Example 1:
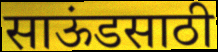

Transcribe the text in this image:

साऊंडसाठी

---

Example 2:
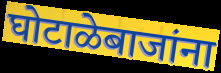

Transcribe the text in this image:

घोटाळेबाजांना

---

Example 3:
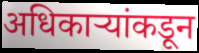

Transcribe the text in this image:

अधिकाऱ्यांकडून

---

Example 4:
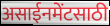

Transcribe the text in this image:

असाईनमेंटसाठी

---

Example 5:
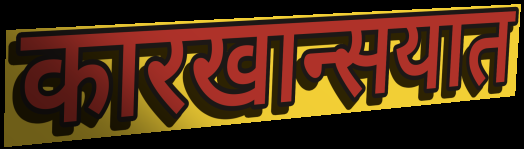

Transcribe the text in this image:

कारखान्सयात